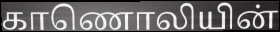
காணொலியின்